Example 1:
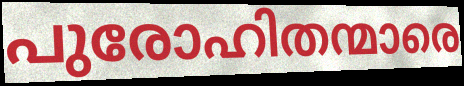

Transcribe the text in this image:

പുരോഹിതന്മാരെ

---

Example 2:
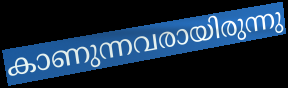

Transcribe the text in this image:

കാണുന്നവരായിരുന്നു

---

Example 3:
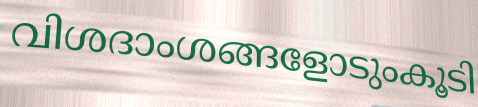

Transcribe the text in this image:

വിശദാംശങ്ങളോടുംകൂടി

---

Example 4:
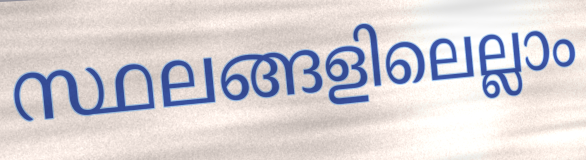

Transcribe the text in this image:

സ്ഥലങ്ങളിലെല്ലാം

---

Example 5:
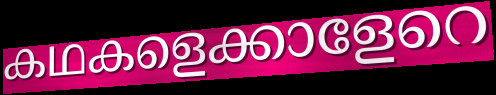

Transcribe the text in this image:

കഥകളെക്കാളേറെ